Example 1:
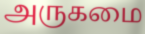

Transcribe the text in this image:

அருகமை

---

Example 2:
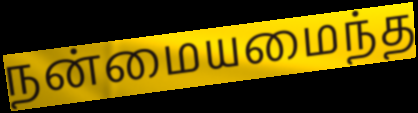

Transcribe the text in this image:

நன்மையமைந்த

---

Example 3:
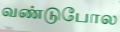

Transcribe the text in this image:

வண்டுபோல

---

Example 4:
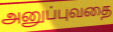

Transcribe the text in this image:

அனுப்புவதை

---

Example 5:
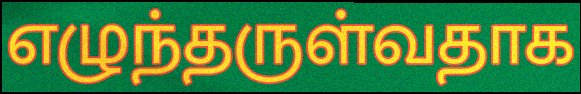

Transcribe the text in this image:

எழுந்தருள்வதாக